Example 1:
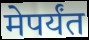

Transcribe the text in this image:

मेपर्यंत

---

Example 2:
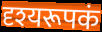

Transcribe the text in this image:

दृश्‍यरूपकं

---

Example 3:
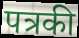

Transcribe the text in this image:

पत्रकी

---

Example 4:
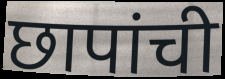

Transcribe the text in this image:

छापांची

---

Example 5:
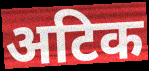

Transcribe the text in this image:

अटिक